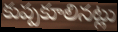
కుప్పకూలినట్లు